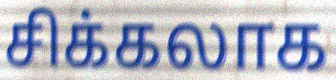
சிக்கலாக